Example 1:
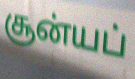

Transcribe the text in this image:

சூன்யப்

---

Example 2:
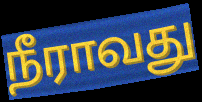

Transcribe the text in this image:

நீராவது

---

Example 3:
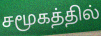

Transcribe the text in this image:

சமூகத்தில்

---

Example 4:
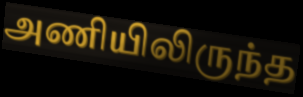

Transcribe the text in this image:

அணியிலிருந்த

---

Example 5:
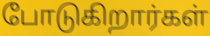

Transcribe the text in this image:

போடுகிறார்கள்